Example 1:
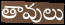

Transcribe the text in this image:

తావులు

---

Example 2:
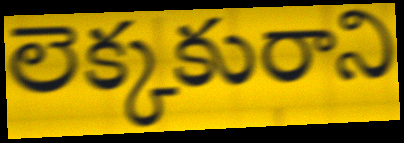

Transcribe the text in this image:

లెక్కకురాని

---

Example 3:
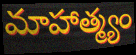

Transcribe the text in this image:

మాహాత్మ్యం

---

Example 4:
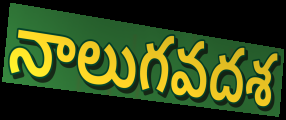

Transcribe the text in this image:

నాలుగవదశ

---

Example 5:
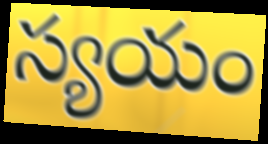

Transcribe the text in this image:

స్యయం